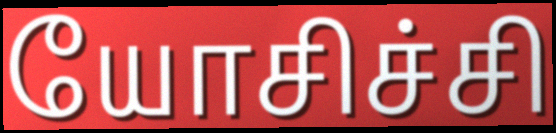
யோசிச்சி